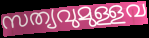
സത്യവുമുള്ളവ